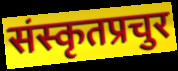
संस्कृतप्रचुर